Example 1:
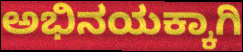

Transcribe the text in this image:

ಅಭಿನಯಕ್ಕಾಗಿ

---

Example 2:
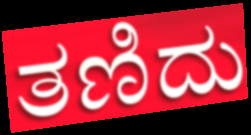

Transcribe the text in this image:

ತಣಿದು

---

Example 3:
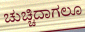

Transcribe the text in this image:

ಚುಚ್ಚಿದಾಗಲೂ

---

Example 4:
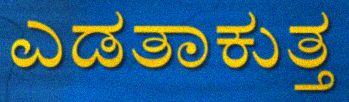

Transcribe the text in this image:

ಎಡತಾಕುತ್ತ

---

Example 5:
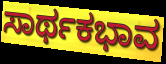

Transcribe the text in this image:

ಸಾರ್ಥಕಭಾವ